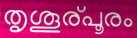
തൃശൂര്പൂരം